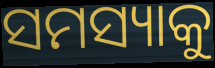
ସମସ୍ୟାକୁ